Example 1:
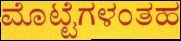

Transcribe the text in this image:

ಮೊಟ್ಟೆಗಳಂತಹ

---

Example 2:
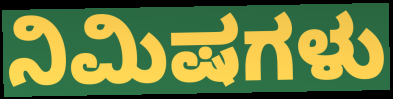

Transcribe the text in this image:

ನಿಮಿಷಗಳು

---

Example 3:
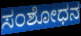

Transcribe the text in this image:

ಸಂಶೋಧನ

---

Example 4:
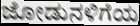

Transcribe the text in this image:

ಜೋಡುನಳಿಗೆಯ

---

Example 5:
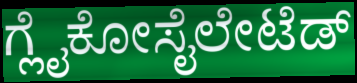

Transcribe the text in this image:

ಗ್ಲೈಕೋಸೈಲೇಟೆಡ್